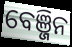
ବେଞ୍ଜିନ